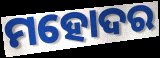
ମହୋଦର